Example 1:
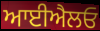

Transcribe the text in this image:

ਆਈਐਲਓ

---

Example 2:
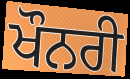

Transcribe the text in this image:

ਖੌਨਰੀ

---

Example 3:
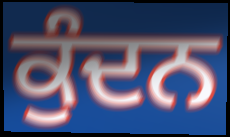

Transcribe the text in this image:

ਕੁੰਦਨ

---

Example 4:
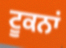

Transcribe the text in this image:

ਟੂਕਨਾਂ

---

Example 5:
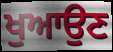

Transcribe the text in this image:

ਖੁਆਉਣ